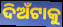
ଦିଅଁଟାକୁ